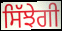
ਸਿੱਝੇਗੀ